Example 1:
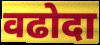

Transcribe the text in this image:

वढोदा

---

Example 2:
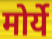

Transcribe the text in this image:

मोर्ये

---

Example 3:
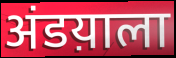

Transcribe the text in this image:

अंडय़ाला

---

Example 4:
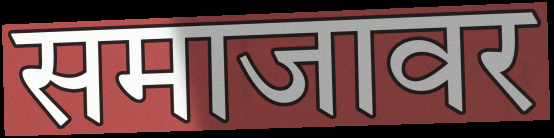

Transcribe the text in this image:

समाजावर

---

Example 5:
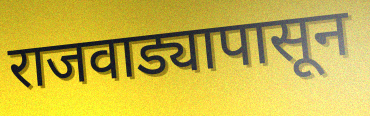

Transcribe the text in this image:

राजवाड्यापासून